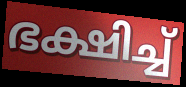
ഭക്ഷിച്ച്